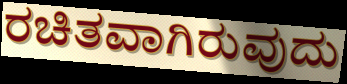
ರಚಿತವಾಗಿರುವುದು